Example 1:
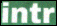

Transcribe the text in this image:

intr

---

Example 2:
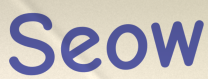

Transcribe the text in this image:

Seow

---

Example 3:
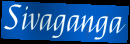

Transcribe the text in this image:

Sivaganga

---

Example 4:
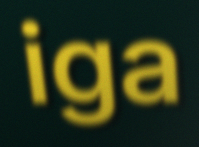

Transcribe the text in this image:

iga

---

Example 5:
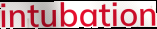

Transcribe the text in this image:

intubation